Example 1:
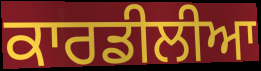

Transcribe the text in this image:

ਕਾਰਡੀਲੀਆ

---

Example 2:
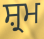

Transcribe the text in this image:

ਸ਼੍ਰਮ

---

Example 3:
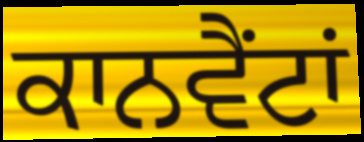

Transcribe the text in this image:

ਕਾਨਵੈਂਟਾਂ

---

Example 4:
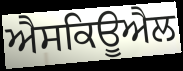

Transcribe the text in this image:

ਐਸਕਿਊਐਲ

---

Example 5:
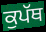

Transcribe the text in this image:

ਕੁਪੱਥ